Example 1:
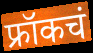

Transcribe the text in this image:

फ्रॉकचं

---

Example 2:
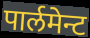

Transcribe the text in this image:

पार्लमेन्ट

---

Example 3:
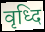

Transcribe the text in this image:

वृध्दि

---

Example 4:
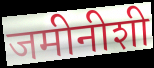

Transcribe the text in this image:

जमीनीशी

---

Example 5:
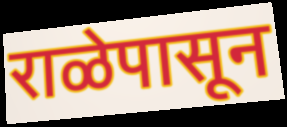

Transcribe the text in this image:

राळेपासून